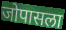
जोपासला